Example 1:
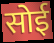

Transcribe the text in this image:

सोई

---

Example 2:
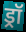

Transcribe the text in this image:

ड्रॉ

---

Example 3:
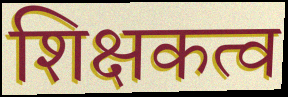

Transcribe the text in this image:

शिक्षकत्व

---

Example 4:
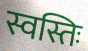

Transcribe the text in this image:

स्वस्तिः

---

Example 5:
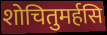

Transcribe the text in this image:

शोचितुमर्हसि